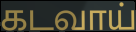
கடவாய்